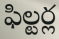
ఫిల్టర్ల